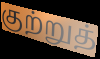
குற்றுத்